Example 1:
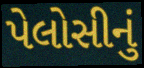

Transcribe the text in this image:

પેલોસીનું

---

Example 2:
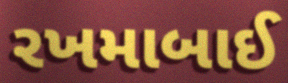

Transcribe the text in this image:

રખમાબાઈ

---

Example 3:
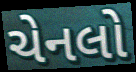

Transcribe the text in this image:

ચેનલો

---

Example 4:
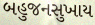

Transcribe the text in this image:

બહુજનસુખાય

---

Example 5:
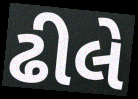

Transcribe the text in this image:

ઢીલે